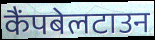
कैंपबेलटाउन